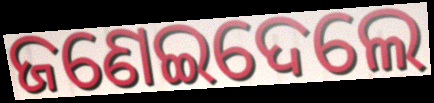
ଜଣେଇଦେଲେ